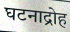
घटनाद्रोह